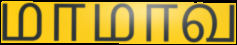
மாமாவ